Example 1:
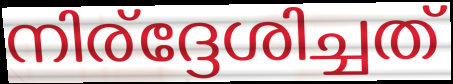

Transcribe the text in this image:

നിര്ദ്ദേശിച്ചത്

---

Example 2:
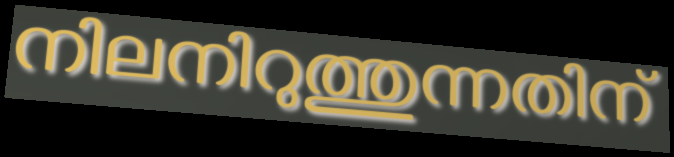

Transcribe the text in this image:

നിലനിറുത്തുന്നതിന്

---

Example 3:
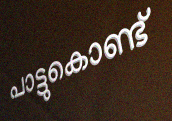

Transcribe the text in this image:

പാട്ടുകൊണ്ട്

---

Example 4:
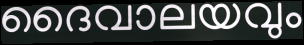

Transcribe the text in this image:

ദൈവാലയവും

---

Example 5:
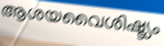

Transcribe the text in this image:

ആശയവൈശിഷ്ട്യം